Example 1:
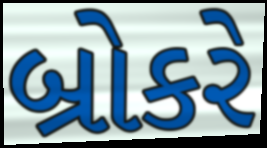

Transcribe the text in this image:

બ્રોકરે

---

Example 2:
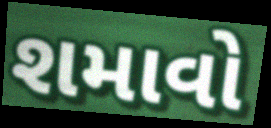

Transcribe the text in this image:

શમાવો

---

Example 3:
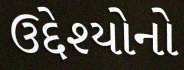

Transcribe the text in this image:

ઉદ્દેશ્યોનો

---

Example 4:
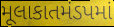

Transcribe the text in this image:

મૂલાકાતમંડપમાં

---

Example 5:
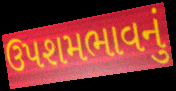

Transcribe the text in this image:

ઉપશમભાવનું